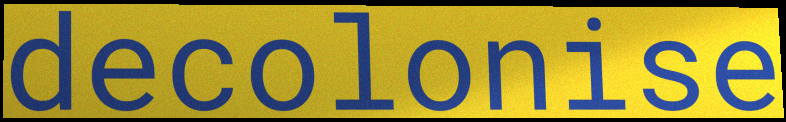
decolonise